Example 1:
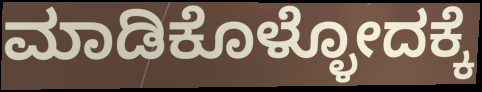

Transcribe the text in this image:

ಮಾಡಿಕೊಳ್ಳೋದಕ್ಕೆ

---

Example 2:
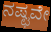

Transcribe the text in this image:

ನಷ್ಟವೇ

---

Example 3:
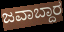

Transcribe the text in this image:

ಜವಾಬ್ದಾರ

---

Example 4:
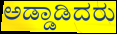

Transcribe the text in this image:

ಅಡ್ಡಾಡಿದರು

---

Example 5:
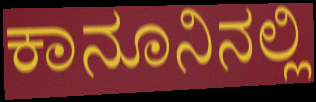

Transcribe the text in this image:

ಕಾನೂನಿನಲ್ಲಿ